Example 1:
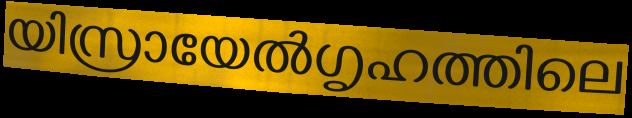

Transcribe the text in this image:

യിസ്രായേൽഗൃഹത്തിലെ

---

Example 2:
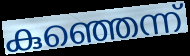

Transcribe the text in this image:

കുഞ്ഞെന്ന്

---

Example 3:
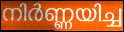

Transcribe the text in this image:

നിർണ്ണയിച്ച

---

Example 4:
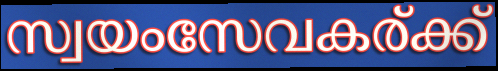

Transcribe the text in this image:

സ്വയംസേവകര്ക്ക്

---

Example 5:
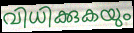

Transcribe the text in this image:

വിധിക്കുകയും